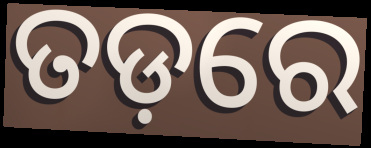
ତଡ଼ରେ